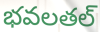
భవలతల్